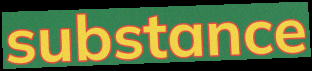
substance